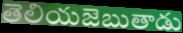
తెలియజెబుతాడు